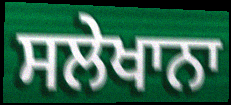
ਸਲੇਖਾਨਾ